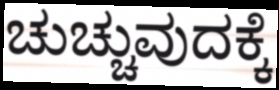
ಚುಚ್ಚುವುದಕ್ಕೆ